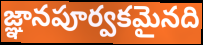
జ్ఞానపూర్వకమైనది